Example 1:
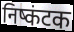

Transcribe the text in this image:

निष्कंटक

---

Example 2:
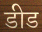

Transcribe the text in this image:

डीड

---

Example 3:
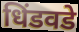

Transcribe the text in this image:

धिंडवडे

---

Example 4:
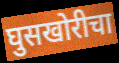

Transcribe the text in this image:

घुसखोरीचा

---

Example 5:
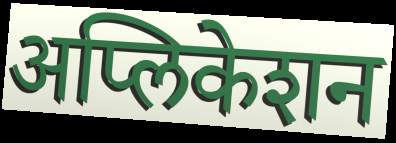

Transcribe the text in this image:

अप्लिकेशन